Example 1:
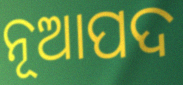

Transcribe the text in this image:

ନୂଆପଦ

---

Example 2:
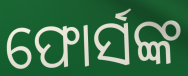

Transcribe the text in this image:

ଫୋର୍ସଙ୍କ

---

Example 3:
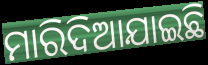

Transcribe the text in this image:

ମାରିଦିଆଯାଇଛି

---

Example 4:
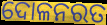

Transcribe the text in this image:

ଦୋଳନରତ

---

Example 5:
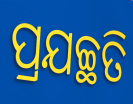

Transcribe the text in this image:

ପ୍ରଯଚ୍ଛତି